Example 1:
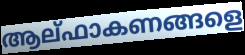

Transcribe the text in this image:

ആല്ഫാകണങ്ങളെ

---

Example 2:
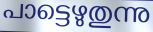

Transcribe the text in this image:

പാട്ടെഴുതുന്നു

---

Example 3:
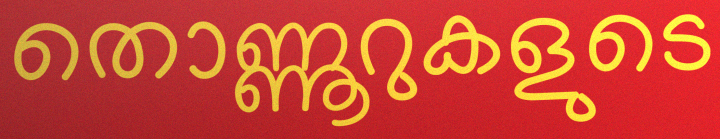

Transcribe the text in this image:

തൊണ്ണൂറുകളുടെ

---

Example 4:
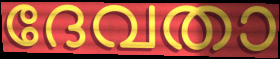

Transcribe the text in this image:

ദേവതാ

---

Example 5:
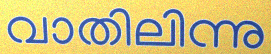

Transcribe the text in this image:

വാതിലിന്നു